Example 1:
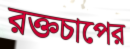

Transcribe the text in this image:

রক্তচাপের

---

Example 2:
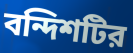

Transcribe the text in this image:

বন্দিশটির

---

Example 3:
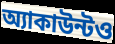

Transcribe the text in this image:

অ্যাকাউন্টও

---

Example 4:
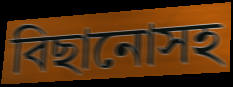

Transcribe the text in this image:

বিছানোসহ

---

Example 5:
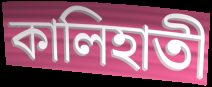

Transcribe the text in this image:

কালিহাতী